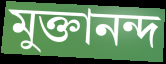
মুক্তানন্দ